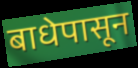
बाधेपासून